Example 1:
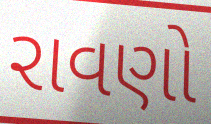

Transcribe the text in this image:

રાવણો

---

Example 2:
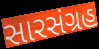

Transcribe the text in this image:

સારસંગ્રહ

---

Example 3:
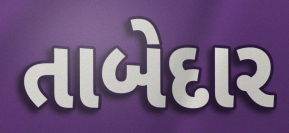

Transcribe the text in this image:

તાબેદાર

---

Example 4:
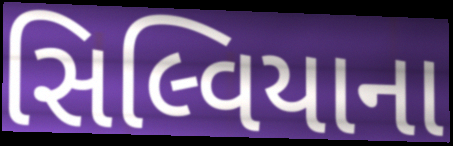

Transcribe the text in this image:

સિલ્વિયાના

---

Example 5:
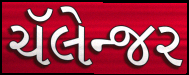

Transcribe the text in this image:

ચૅલેન્જર